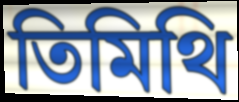
তিমিথি